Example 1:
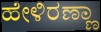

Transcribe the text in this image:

ಹೇಳಿರಣ್ಣಾ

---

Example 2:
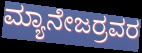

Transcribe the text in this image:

ಮ್ಯಾನೇಜರ್ರವರ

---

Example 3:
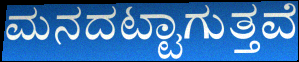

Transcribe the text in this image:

ಮನದಟ್ಟಾಗುತ್ತವೆ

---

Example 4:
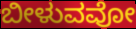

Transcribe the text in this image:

ಬೀಳುವವೋ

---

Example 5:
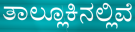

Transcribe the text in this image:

ತಾಲ್ಲೂಕಿನಲ್ಲಿವೆ